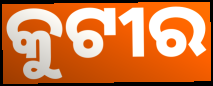
କୁଟୀର